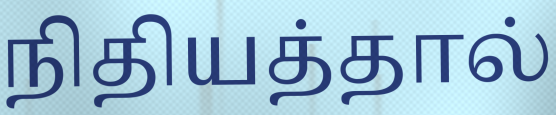
நிதியத்தால்